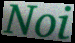
Noi